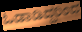
ಓಡಾಡಿದ್ದರಿಂದ